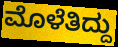
ಮೊಳೆತಿದ್ದು